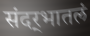
संदर्भातलं